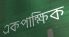
একপাক্ষিক